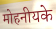
मोहनीयके